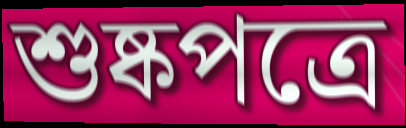
শুষ্কপত্রে